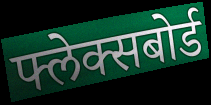
फ्लेक्सबोर्ड